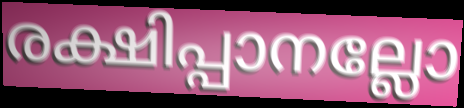
രക്ഷിപ്പാനല്ലോ